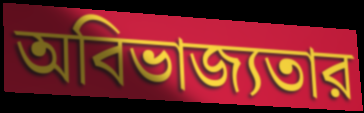
অবিভাজ্যতার